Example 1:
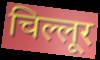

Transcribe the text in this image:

चिल्लूर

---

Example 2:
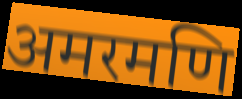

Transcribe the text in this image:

अमरमणि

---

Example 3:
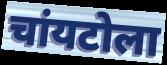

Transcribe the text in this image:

चांयटोला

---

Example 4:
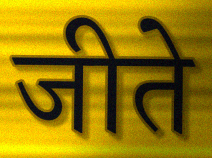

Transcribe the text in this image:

जीते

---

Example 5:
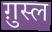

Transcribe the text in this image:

ग़ुस्ल